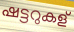
ഷട്ടറുകള്